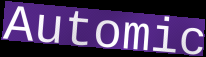
Automic